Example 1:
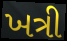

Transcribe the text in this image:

ખત્રી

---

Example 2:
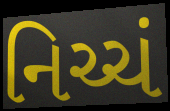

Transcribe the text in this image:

નિચ્ચં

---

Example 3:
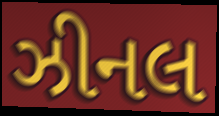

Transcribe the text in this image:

ઝીનલ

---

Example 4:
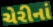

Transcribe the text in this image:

ચેરીનાં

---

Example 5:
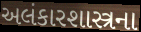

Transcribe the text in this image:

અલંકારશાસ્ત્રના